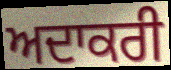
ਅਦਾਕਰੀ